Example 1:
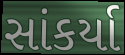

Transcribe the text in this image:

સાંકર્યા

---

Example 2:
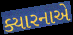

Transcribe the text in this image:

ક્યારનાએ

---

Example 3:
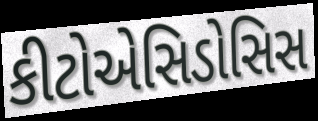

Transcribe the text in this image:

કીટોએસિડોસિસ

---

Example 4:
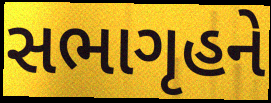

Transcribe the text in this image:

સભાગૃહને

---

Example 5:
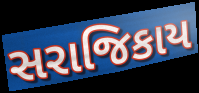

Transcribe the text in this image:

સરાજિકાય